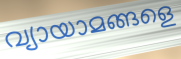
വ്യായാമങ്ങളെ